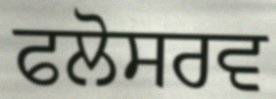
ਫਲੋਸਰਵ